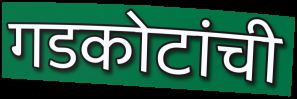
गडकोटांची